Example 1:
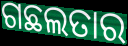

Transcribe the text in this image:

ଗଛଲତାର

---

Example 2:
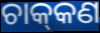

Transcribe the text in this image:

ଚାକ୍‌କଣ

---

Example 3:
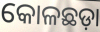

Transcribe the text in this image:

କୋଳଛଡ଼ା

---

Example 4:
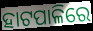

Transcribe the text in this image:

ହାଟପାଳିରେ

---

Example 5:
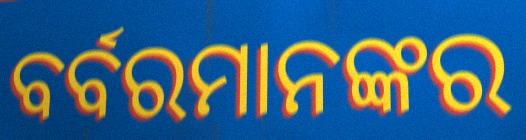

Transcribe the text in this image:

ବର୍ବରମାନଙ୍କର